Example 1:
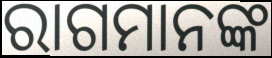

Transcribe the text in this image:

ରାଗମାନଙ୍କ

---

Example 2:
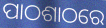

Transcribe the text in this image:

ପାଠଶାଠରେ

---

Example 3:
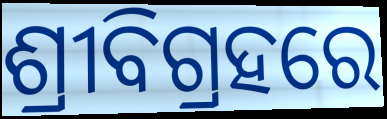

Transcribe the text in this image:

ଶ୍ରୀବିଗ୍ରହରେ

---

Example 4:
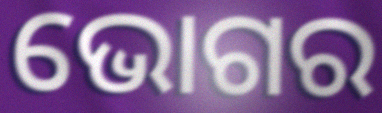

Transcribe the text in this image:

ଭୋଗର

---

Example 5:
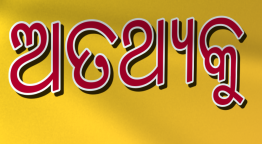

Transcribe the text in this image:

ଅତଥ୍ୟକୁ